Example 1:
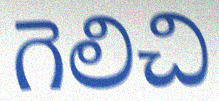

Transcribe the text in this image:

గెలిచి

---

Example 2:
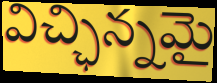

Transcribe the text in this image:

విచ్ఛిన్నమై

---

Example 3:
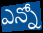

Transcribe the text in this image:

ఎన్నో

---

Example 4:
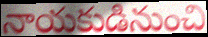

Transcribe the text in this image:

నాయకుడినుంచి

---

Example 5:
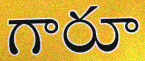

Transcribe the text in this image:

గారూ